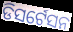
ଡିସର୍ଟେସନ